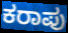
ಕರಾಪು